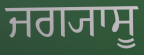
ਜਗ੍ਯਾਸੂ